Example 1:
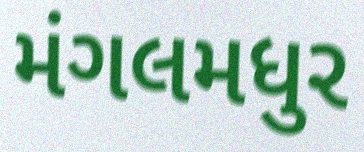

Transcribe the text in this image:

મંગલમધુર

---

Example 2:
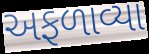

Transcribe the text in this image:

અફળાવ્યા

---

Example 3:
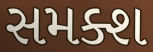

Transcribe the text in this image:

સમક્શ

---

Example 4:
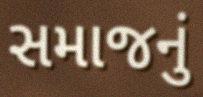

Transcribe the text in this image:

સમાજનું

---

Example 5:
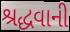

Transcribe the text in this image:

શ્રદ્ધવાની